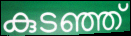
കുടഞ്ഞ്